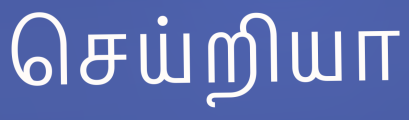
செய்றியா